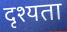
दृश्यता